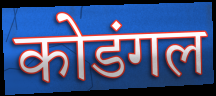
कोडंगल